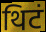
थिटं